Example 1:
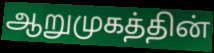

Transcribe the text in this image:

ஆறுமுகத்தின்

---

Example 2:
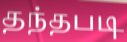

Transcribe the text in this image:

தந்தபடி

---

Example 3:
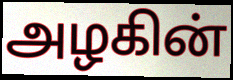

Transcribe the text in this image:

அழகின்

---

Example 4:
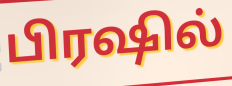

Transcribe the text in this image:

பிரஷில்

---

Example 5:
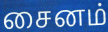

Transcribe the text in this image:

சைனம்